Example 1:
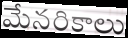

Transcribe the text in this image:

మేనరికాలు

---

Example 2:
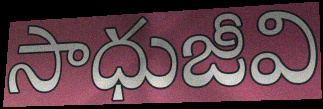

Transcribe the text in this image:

సాధుజీవి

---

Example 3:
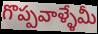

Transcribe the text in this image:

గొప్పవాళ్ళేమీ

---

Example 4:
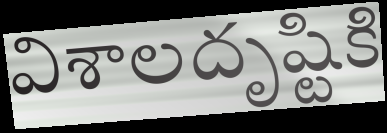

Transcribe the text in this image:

విశాలదృష్టికి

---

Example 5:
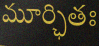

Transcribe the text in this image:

మూర్ఛితః